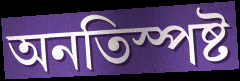
অনতিস্পষ্ট